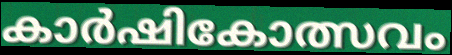
കാർഷികോത്സവം